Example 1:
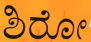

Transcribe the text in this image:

ಶಿರೋ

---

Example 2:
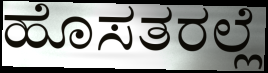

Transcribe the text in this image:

ಹೊಸತರಲ್ಲೆ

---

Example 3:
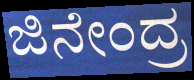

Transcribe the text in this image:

ಜಿನೇಂದ್ರ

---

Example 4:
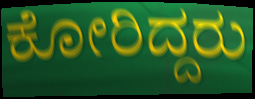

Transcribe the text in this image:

ಕೋರಿದ್ದರು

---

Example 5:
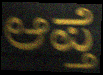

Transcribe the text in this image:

ಆಪ್ತೆ